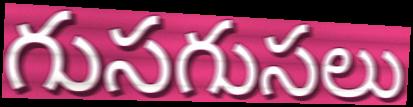
గుసగుసలు